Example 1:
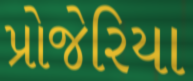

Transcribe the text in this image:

પ્રોજેરિયા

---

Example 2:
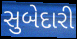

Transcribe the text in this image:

સુબેદારી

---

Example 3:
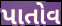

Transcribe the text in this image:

પાતોવ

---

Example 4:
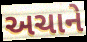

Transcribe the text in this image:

અચાને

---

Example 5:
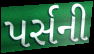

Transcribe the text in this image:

પર્સની